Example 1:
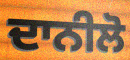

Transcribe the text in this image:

ਦਾਨੀਲੋ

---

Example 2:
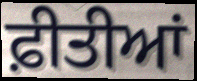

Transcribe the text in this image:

ਫ਼ੀਤੀਆਂ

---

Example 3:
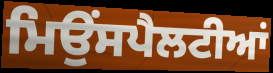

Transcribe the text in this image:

ਮਿਉਂਸਪੈਲਟੀਆਂ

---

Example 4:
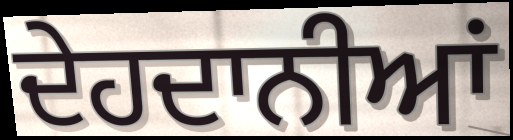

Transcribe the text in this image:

ਦੇਹਦਾਨੀਆਂ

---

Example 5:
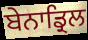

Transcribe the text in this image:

ਬੇਨਾਡ੍ਰਿਲ